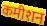
कमीशन